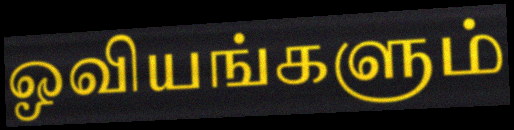
ஓவியங்களும்